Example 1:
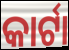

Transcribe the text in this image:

କାର୍ଟା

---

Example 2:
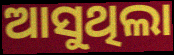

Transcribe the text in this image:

ଆସୁଥିଲା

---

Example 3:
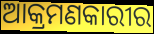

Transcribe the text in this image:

ଆକ୍ରମଣକାରୀର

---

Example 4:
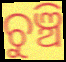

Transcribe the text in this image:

ଚୁଞ୍ଚି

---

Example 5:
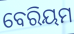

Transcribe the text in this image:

ବେରିୟମ